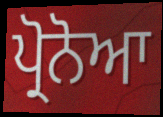
ਪ੍ਰੋਨੋਆ